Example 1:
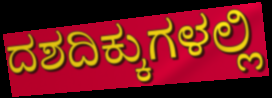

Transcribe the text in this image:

ದಶದಿಕ್ಕುಗಳಲ್ಲಿ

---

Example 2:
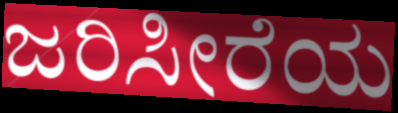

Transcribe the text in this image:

ಜರಿಸೀರೆಯ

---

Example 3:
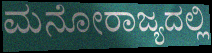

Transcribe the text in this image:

ಮನೋರಾಜ್ಯದಲ್ಲಿ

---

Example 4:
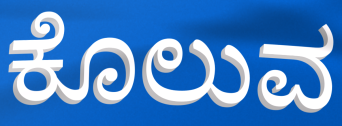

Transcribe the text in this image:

ಕೊಲುವ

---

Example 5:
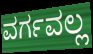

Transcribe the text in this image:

ವರ್ಗವಲ್ಲ